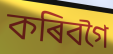
কৰিবগৈ